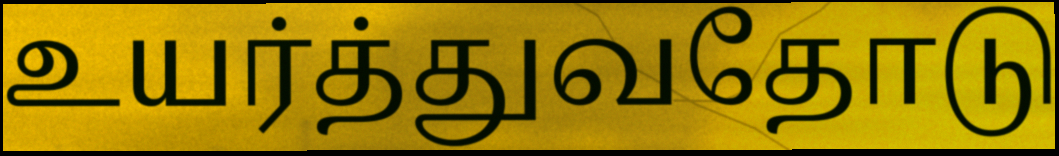
உயர்த்துவதோடு